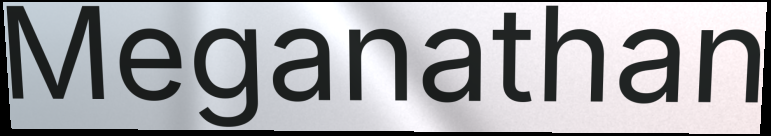
Meganathan